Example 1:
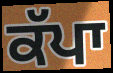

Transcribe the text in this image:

ਕੱਪਾ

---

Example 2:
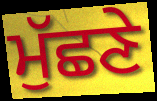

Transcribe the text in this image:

ਮੁੱਛਣੇ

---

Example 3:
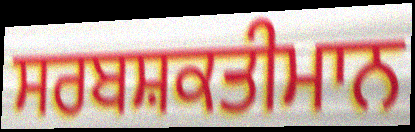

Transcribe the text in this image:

ਸਰਬਸ਼ਕਤੀਮਾਨ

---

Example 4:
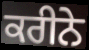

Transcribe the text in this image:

ਕਰੀਨੇ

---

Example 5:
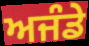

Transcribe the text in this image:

ਅਜੰਡੇ